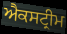
ਐਕਸਟ੍ਰੀਮ